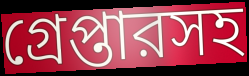
গ্রেপ্তারসহ